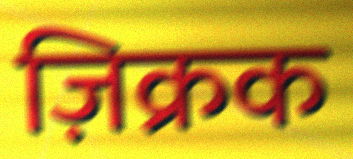
ज़िक्रक